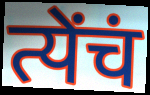
त्येंचं